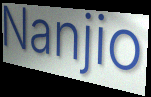
Nanjio